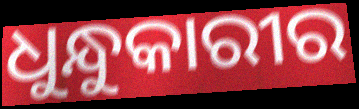
ଧୁନ୍ଧୁକାରୀର